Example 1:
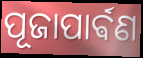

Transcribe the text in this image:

ପୂଜାପାର୍ଵଣ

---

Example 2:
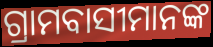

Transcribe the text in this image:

ଗ୍ରାମବାସୀମାନଙ୍କ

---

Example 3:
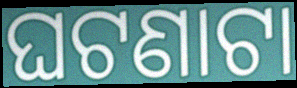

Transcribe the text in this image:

ଘଟଣାଟା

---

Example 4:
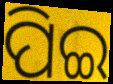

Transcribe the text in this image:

ପିଇ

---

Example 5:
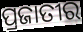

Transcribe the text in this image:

ପ୍ରଜାତୀର